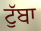
ਟੁੱਬਾ